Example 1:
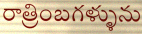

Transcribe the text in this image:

రాత్రింబగళ్ళును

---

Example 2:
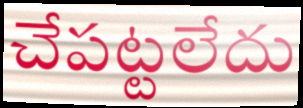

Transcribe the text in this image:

చేపట్టలేదు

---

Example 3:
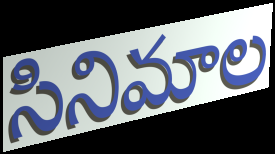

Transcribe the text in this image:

సినిమాల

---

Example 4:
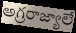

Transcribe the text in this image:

అగ్రరాజ్యాలే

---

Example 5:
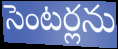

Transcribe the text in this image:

సెంటర్లను